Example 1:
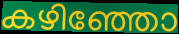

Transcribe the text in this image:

കഴിഞ്ഞോ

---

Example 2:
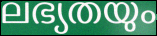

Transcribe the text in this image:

ലഭ്യതയും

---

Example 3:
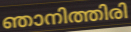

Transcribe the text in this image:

ഞാനിത്തിരി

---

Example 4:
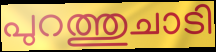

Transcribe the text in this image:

പുറത്തുചാടി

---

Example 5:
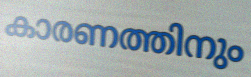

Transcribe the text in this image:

കാരണത്തിനും